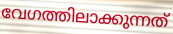
വേഗത്തിലാക്കുന്നത്